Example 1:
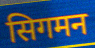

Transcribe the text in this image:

सिगमन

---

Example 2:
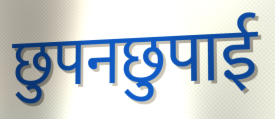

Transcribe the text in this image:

छुपनछुपाई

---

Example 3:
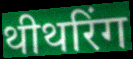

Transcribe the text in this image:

थीथरिंग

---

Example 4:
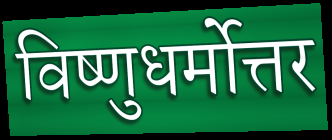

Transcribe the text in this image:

विष्णुधर्मोत्तर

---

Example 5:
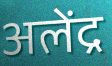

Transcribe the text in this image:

अलेंद्र